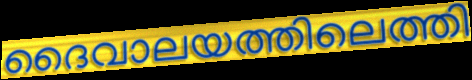
ദൈവാലയത്തിലെത്തി